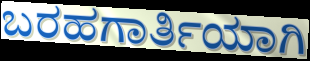
ಬರಹಗಾರ್ತಿಯಾಗಿ